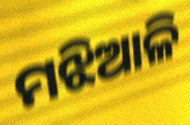
ମଝିଆଳି